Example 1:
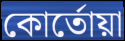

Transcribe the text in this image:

কোর্তোয়া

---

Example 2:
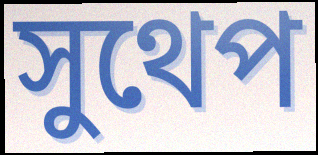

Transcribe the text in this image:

সুথেপ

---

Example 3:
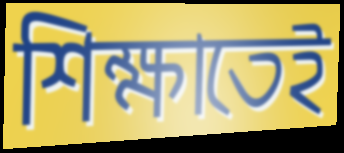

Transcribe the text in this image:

শিক্ষাতেই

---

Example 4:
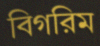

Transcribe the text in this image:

বিগরিম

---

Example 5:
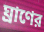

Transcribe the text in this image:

ঘ্রাণের